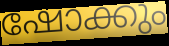
ഷോക്കും